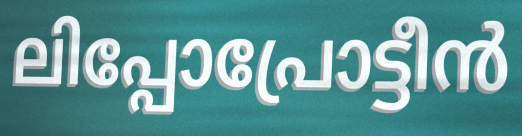
ലിപ്പോപ്രോട്ടീൻ